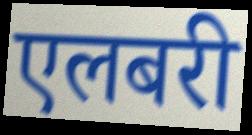
एलबरी